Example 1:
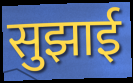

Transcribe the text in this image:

सुझाई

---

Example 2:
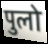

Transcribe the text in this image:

पुलो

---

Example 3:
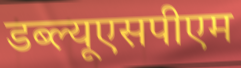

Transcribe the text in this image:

डब्ल्यूएसपीएम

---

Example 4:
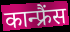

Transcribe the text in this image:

कान्फ्रैंस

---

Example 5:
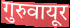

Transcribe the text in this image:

गुरुवायूर